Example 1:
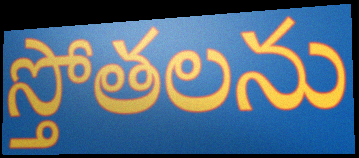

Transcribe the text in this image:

స్తోతలను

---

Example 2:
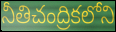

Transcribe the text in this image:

నీతిచంద్రికలోని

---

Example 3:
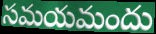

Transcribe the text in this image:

సమయమందు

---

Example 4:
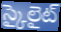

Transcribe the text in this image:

స్కైలైట్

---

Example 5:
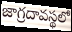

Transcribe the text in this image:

జాగ్రదావస్థలో